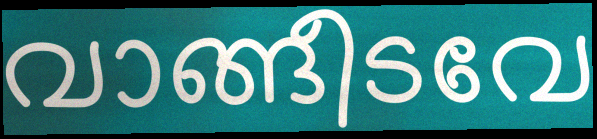
വാങ്ങീടവേ